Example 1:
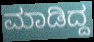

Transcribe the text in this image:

ಮಾಡಿದ್ದ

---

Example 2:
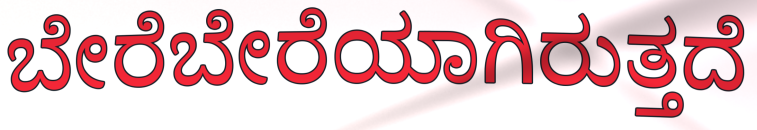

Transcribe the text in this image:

ಬೇರೆಬೇರೆಯಾಗಿರುತ್ತದೆ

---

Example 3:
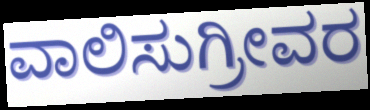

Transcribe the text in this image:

ವಾಲಿಸುಗ್ರೀವರ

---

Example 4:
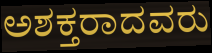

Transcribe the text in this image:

ಅಶಕ್ತರಾದವರು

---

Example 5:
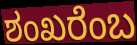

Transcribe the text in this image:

ಶಂಖರೆಂಬ